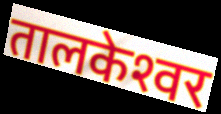
तालकेश्वर